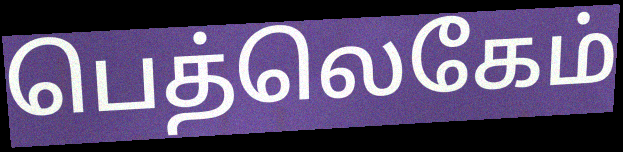
பெத்லெகேம்